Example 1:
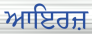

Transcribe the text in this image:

ਆਇਰਜ਼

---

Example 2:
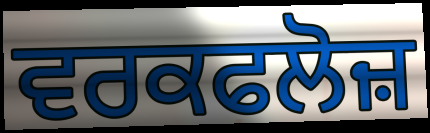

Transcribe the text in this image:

ਵਰਕਫਲੋਜ਼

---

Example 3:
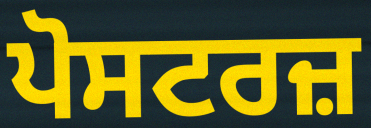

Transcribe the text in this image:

ਪੋਸਟਰਜ਼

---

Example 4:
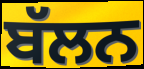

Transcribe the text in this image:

ਬੱਲਨ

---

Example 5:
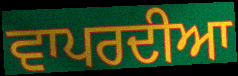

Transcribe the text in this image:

ਵਾਪਰਦੀਆ